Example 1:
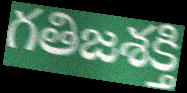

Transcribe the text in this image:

గతిజశక్తి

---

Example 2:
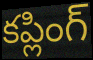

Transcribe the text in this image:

కప్లింగ్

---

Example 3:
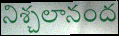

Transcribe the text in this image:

నిశ్చలానంద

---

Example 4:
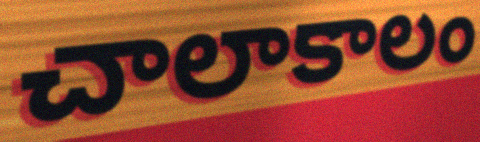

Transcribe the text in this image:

చాలాకాలం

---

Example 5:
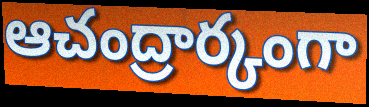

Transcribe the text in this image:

ఆచంద్రార్కంగా